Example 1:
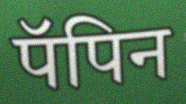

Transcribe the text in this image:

पॅपिन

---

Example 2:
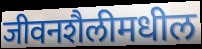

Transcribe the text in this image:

जीवनशैलीमधील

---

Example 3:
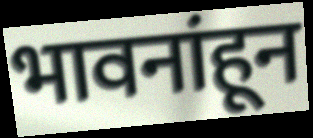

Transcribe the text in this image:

भावनांहून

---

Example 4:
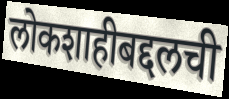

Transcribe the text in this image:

लोकशाहीबद्दलची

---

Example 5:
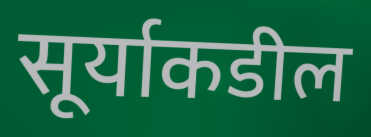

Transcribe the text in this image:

सूर्याकडील